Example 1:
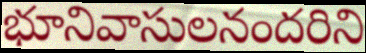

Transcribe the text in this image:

భూనివాసులనందరిని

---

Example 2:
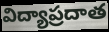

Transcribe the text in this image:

విద్యాప్రదాత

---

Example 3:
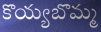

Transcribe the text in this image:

కొయ్యబొమ్మ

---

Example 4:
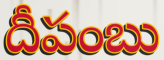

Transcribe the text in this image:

దీపంబు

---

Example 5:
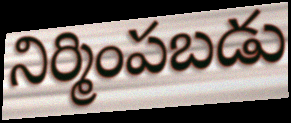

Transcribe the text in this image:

నిర్మింపబడు